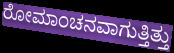
ರೋಮಾಂಚನವಾಗುತ್ತಿತ್ತು